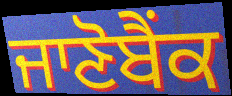
ਜਾਣੋਬੈਂਕ